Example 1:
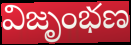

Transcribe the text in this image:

విజృంభణ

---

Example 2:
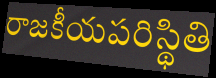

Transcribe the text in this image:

రాజకీయపరిస్థితి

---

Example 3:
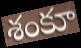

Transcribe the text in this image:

శంకూ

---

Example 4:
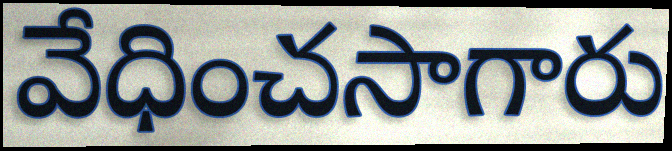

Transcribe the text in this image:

వేధించసాగారు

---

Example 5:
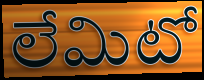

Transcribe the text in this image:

లేమిటో